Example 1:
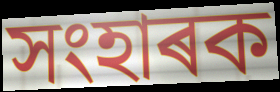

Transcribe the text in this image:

সংহাৰক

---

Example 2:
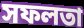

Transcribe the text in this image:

সফলতা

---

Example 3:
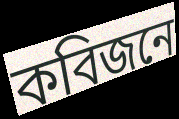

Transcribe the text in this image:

কবিজনে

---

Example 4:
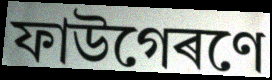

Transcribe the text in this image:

ফাউগেৰণে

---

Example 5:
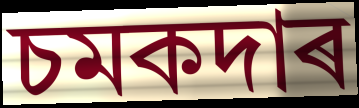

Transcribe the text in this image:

চমকদাৰ